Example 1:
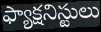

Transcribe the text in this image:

ఫ్యాక్షనిస్టులు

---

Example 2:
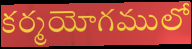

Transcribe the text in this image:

కర్మయోగములో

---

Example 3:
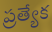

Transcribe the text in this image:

ప్రత్యేక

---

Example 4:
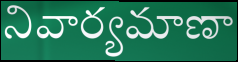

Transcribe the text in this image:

నివార్యమాణా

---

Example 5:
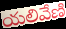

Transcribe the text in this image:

యలివేణి